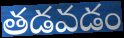
తడవడం